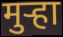
मुऱ्हा